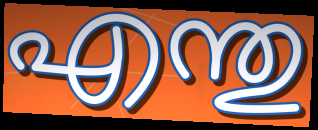
എന്തു